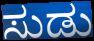
ಸುಡು